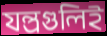
যন্ত্রগুলিই